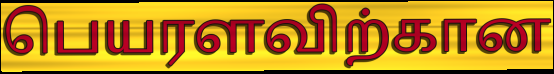
பெயரளவிற்கான